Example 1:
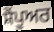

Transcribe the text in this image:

ਸ਼ੈਂਪੂਅਰ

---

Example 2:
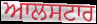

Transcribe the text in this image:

ਆਲਸਟਾਰ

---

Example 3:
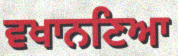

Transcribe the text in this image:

ਵਖਾਨਣਿਆ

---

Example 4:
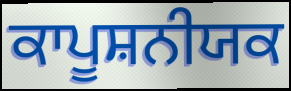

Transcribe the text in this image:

ਕਾਪੂਸ਼ਨੀਯਕ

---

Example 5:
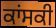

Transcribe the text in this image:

ਕਾਂਸਕੀ